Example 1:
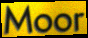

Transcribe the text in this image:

Moor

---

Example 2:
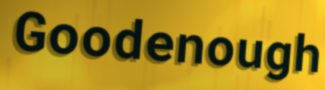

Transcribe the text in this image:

Goodenough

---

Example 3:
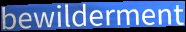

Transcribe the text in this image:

bewilderment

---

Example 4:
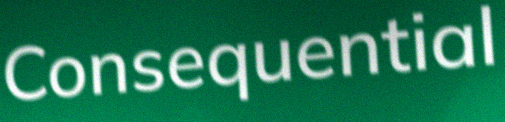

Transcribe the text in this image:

Consequential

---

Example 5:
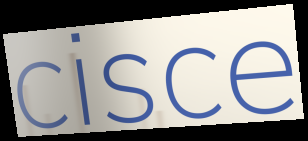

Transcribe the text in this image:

cisce